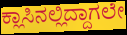
ಕ್ಲಾಸಿನಲ್ಲಿದ್ದಾಗಲೇ